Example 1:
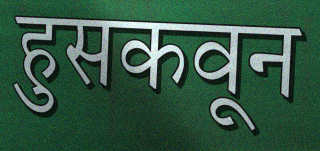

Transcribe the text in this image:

हुसकवून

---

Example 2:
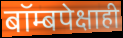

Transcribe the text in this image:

बॉम्बपेक्षाही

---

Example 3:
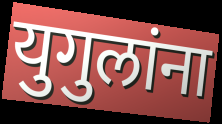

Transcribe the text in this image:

युगुलांना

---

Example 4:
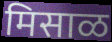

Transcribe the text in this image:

मिसाळ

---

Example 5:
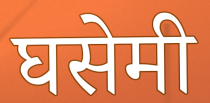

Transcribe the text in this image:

घसेमी